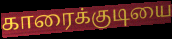
காரைக்குடியை